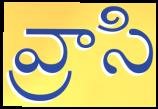
వ్రాసి